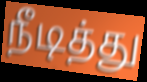
நீடித்து